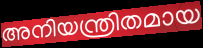
അനിയന്ത്രിതമായ